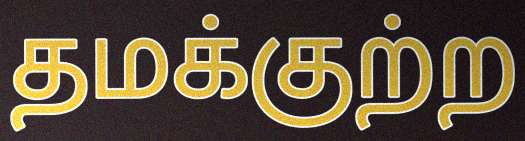
தமக்குற்ற